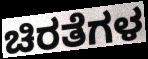
ಚಿರತೆಗಳ